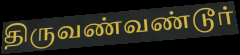
திருவண்வண்டூர்